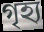
গৃহ্য